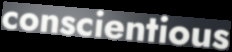
conscientious